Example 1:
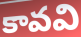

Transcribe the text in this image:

కావవి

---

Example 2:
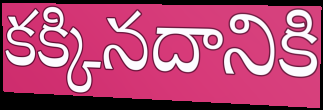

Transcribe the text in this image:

కక్కినదానికి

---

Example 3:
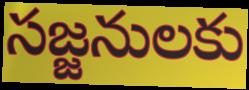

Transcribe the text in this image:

సజ్జనులకు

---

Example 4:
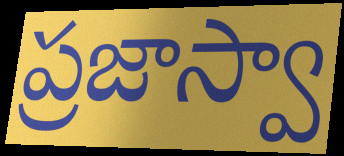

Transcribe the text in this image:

ప్రజాస్వా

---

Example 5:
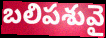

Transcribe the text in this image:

బలిపశువై